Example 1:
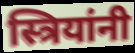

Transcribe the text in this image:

स्त्रियांनी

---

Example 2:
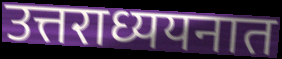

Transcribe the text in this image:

उत्तराध्ययनात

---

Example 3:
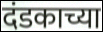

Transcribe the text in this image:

दंडकाच्या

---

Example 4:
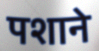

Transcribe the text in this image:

पशाने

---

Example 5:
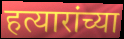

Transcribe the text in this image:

हत्यारांच्या